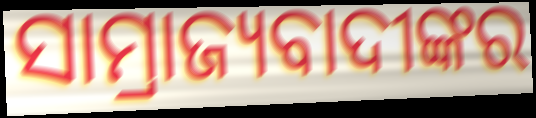
ସାମ୍ରାଜ୍ୟବାଦୀଙ୍କର